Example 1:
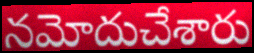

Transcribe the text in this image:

నమోదుచేశారు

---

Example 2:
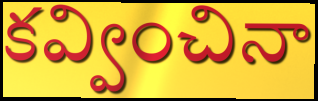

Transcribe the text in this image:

కవ్వించినా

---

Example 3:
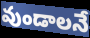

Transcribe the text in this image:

వుండాలనే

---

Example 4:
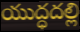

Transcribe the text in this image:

యుద్ధదల్లి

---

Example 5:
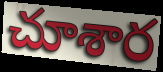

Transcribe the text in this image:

చూశార